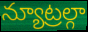
న్యూట్రల్గా